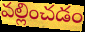
వల్లించడం